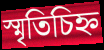
স্মৃতিচিহ্ন